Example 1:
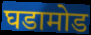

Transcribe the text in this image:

घडामोड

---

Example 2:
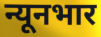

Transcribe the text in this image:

न्यूनभार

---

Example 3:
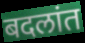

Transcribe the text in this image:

बदलांत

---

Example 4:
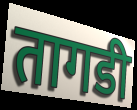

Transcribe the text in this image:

तागडी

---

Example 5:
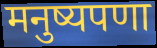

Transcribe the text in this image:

मनुष्यपणा